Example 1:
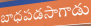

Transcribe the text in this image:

బాధపడసాగాడు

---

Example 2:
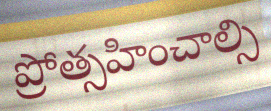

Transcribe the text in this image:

ప్రోత్సహించాల్సి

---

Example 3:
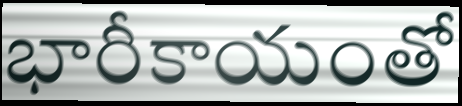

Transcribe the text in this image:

భారీకాయంతో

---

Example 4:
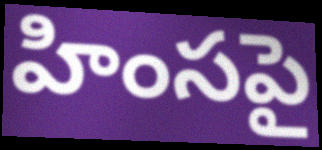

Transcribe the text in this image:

హింసపై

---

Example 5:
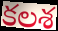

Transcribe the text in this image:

కలశ